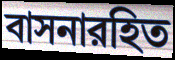
বাসনারহিত